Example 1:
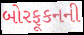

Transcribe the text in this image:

બોરફૂકનની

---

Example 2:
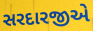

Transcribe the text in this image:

સરદારજીએ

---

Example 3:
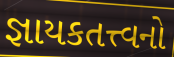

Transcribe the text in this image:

જ્ઞાયકતત્ત્વનો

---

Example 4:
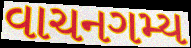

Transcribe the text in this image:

વાચનગમ્ય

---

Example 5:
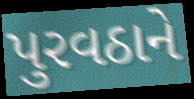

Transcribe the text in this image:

પુરવઠાને